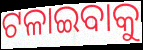
ଟଳାଇବାକୁ